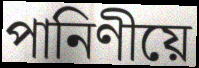
পানিণীয়ে